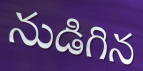
నుడిగిన